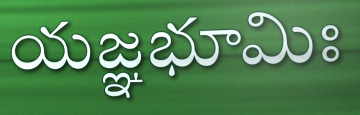
యజ్ఞభూమిః